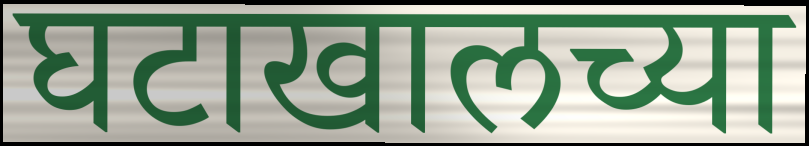
घटाखालच्या